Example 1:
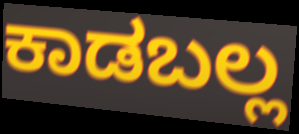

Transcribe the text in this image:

ಕಾಡಬಲ್ಲ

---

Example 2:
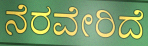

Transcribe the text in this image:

ನೆರವೇರಿದೆ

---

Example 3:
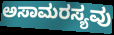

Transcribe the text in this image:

ಅಸಾಮರಸ್ಯವು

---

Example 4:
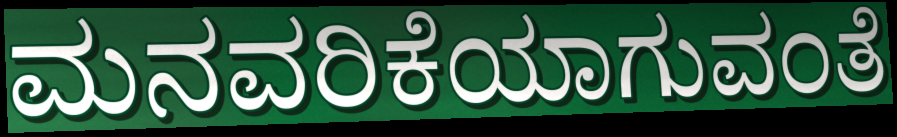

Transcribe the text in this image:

ಮನವರಿಕೆಯಾಗುವಂತೆ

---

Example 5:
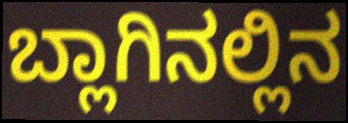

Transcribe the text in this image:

ಬ್ಲಾಗಿನಲ್ಲಿನ